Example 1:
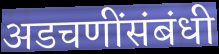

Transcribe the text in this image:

अडचणींसंबंधी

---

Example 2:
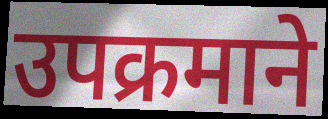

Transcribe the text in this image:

उपक्रमाने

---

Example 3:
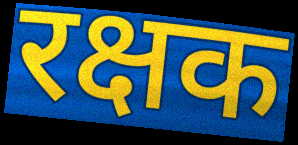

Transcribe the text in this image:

रक्षक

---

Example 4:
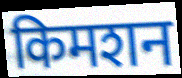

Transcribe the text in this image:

किमशन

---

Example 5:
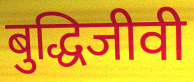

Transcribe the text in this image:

बुद्धिजीवी